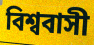
বিশ্ববাসী